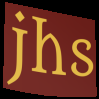
jhs